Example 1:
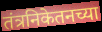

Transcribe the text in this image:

तंत्रनिकेतनच्या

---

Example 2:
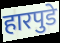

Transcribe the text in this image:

हारपुडे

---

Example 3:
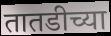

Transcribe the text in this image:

तातडीच्या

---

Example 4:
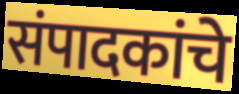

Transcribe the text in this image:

संपादकांचे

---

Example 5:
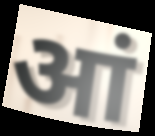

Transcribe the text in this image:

आं